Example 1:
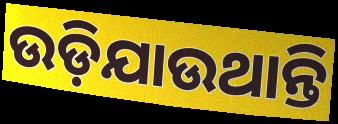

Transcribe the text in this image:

ଉଡ଼ିଯାଉଥାନ୍ତି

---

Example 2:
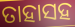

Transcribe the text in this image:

ତାହାସହ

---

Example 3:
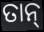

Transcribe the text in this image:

ତାନ୍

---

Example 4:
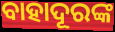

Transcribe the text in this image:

ବାହାଦୂରଙ୍କ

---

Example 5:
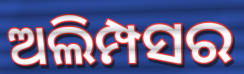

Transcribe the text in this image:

ଅଲିମ୍ପସର